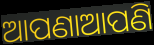
ଆପଣାଆପଣି